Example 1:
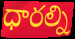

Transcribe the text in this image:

ధారల్ని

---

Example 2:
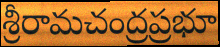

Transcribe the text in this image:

శ్రీరామచంద్రప్రభూ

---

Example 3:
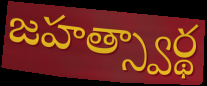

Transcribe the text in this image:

జహత్స్వార్థ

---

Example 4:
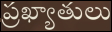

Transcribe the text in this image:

ప్రఖ్యాతులు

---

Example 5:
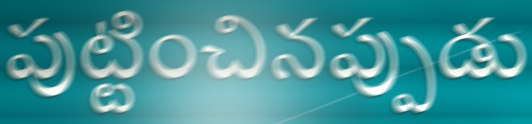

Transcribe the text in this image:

పుట్టించినప్పుడు